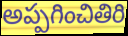
అప్పగించితిరి